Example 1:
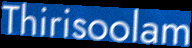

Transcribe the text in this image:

Thirisoolam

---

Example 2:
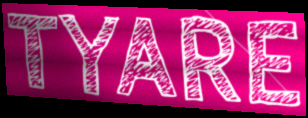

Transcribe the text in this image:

TYARE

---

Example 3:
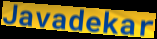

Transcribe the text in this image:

Javadekar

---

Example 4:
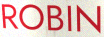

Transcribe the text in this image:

ROBIN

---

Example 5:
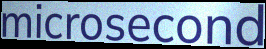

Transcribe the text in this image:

microsecond